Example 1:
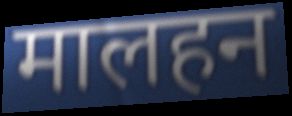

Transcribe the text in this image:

मालहन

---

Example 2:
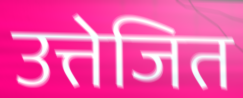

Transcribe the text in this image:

उत्तेजित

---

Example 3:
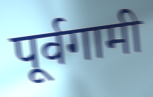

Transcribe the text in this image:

पूर्वगामी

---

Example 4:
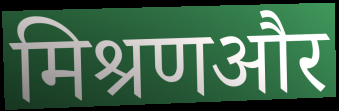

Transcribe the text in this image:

मिश्रणऔर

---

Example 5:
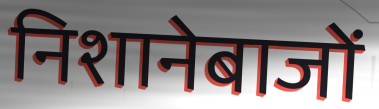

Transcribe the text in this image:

निशानेबाजों